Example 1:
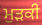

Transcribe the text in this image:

ਮੁੜਕੀ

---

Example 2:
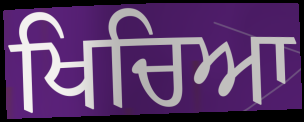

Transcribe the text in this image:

ਖਿਚਿਆ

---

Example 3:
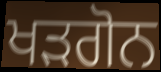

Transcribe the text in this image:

ਖੜਗੋਨ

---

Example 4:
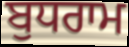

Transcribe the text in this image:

ਬੁਧਰਾਮ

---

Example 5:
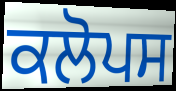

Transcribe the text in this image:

ਕਲੋਪਸ